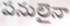
పనులైనా